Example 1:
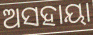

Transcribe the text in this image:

ଅସହାୟା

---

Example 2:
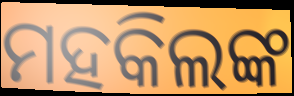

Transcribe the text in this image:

ମହକିଲଙ୍କ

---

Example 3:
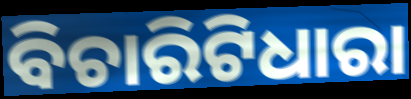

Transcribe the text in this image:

ବିଚାରିଟିଧାରା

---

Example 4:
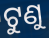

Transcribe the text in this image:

ଟୁଣୁ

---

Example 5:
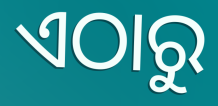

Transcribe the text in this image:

ଏଠାରୁ